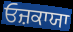
ਓਜ਼ਕਾਯਾ